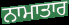
ਨਾਮਾਤਾਰ